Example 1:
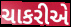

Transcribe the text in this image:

ચાકરીએ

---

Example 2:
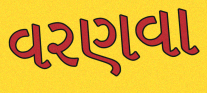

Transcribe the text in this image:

વરણવા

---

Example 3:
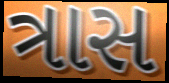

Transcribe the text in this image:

ત્રાસ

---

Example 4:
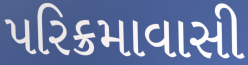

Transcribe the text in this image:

પરિક્રમાવાસી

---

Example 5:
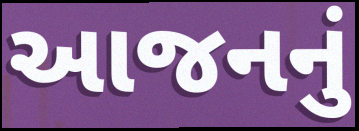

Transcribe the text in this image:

આજનનું